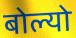
बोल्यो